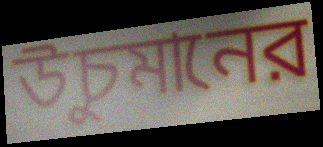
উচুমানের